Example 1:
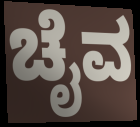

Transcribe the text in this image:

ಚೈವ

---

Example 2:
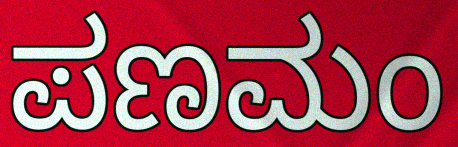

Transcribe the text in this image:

ಪಣಮಂ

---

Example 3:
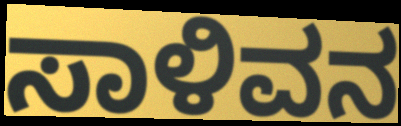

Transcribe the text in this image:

ಸಾಳಿವನ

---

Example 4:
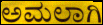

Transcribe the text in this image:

ಅಮಲಾಗಿ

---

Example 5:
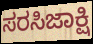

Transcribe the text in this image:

ಸರಸಿಜಾಕ್ಷಿ